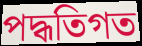
পদ্ধতিগত